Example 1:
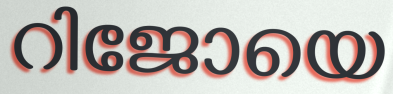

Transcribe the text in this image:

റിജോയെ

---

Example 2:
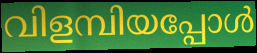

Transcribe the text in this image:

വിളമ്പിയപ്പോൾ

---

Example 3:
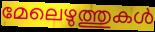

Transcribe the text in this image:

മേലെഴുത്തുകൾ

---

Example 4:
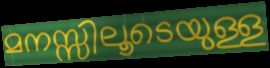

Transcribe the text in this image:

മനസ്സിലൂടെയുള്ള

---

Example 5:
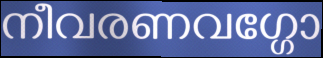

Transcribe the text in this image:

നീവരണവഗ്ഗോ